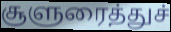
சூளுரைத்துச்